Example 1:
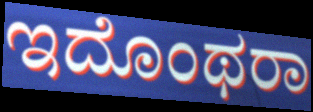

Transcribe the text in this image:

ಇದೊಂಥರಾ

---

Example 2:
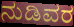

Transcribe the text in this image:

ನುಡಿವರ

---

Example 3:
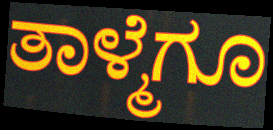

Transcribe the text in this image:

ತಾಳ್ಮೆಗೂ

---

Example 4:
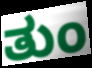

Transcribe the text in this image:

ತುಂ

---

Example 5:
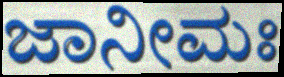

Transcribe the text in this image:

ಜಾನೀಮಃ